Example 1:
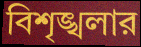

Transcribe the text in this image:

বিশৃঙ্খলার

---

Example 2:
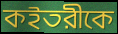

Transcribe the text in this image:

কইতরীকে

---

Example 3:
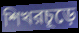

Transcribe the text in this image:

শিখরচূড়ে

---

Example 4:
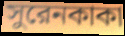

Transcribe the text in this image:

সুরেনকাকা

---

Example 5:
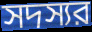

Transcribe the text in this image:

সদস্যর